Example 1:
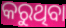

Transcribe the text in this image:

କରୁଥିବା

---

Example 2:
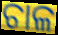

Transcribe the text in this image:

ଚାଳ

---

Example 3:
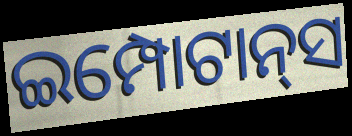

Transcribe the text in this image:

ଇମ୍ପୋଟାନ୍‌ସ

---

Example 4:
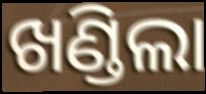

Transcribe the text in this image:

ଖଣ୍ଡିଲା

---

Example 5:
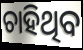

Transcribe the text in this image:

ଚାହିଥିବ